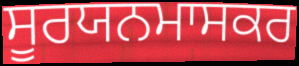
ਸੂਰਯਨਮਾਸਕਰ